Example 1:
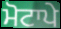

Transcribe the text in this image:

ਮੋਟਾਪੇ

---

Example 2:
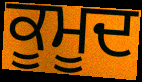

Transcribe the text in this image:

ਕੂਮੂਦ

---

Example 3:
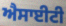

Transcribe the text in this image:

ਐਸਾਈਟੀ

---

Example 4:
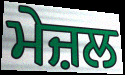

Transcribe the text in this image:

ਮੇਜ਼ਲ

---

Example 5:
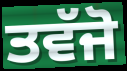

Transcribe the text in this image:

ਤਵੱਜੋ